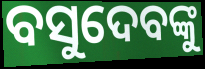
ବସୁଦେବଙ୍କୁ